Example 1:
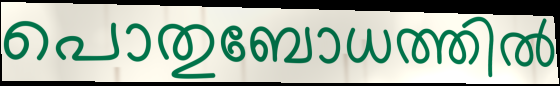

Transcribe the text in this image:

പൊതുബോധത്തിൽ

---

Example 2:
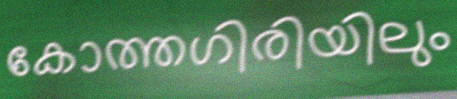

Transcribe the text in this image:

കോത്തഗിരിയിലും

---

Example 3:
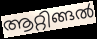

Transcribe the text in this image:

ആറ്റിങ്ങൽ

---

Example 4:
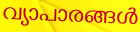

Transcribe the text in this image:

വ്യാപാരങ്ങൾ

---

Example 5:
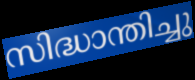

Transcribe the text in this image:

സിദ്ധാന്തിച്ചു